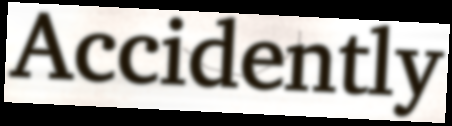
Accidently